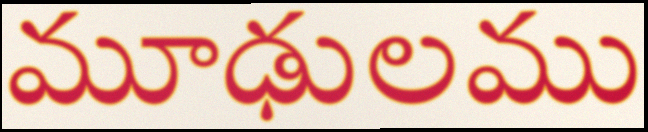
మూఢులము